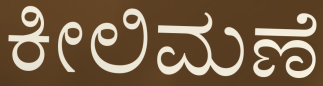
ಕೀಲಿಮಣೆ